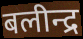
बलीन्द्र